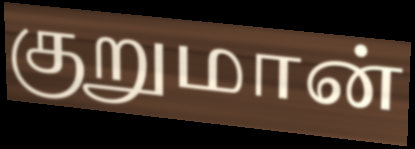
குறுமான்